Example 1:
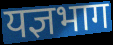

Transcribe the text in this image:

यज्ञभाग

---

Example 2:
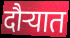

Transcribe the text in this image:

दौऱ्यात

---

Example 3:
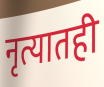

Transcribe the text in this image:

नृत्यातही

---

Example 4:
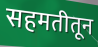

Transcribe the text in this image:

सहमतीतून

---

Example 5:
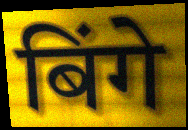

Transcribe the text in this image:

बिंगे